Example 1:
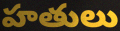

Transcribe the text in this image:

హతులు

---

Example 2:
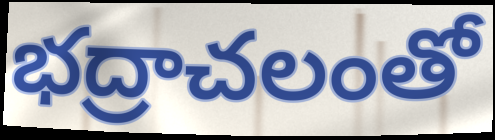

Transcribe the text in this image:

భద్రాచలంతో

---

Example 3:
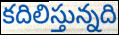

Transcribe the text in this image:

కదిలిస్తున్నది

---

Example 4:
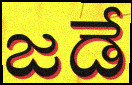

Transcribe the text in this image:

జడే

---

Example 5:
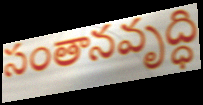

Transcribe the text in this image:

సంతానవృద్ధి